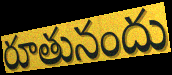
రూతునందు